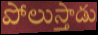
పోలుస్తాడు